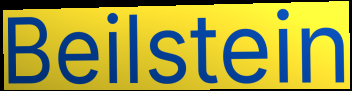
Beilstein